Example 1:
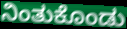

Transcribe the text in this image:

ನಿಂತುಕೊಂಡು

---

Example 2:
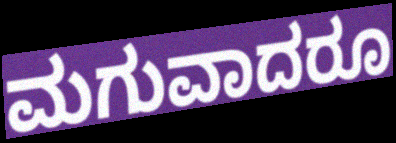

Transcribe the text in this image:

ಮಗುವಾದರೂ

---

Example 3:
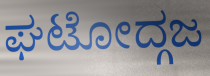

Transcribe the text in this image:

ಘಟೋದ್ಗಜ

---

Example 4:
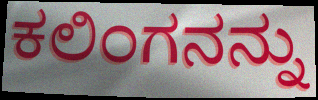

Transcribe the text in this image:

ಕಲಿಂಗನನ್ನು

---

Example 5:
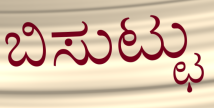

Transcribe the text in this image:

ಬಿಸುಟ್ಟು